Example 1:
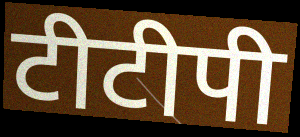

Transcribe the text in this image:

टीटीपी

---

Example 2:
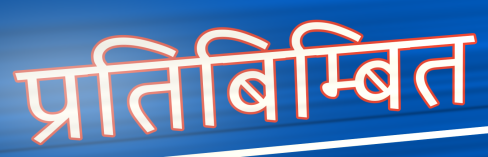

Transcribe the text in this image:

प्रतिबिम्बित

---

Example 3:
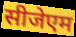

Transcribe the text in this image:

सीजेएम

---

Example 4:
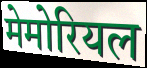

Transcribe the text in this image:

मेमोरियल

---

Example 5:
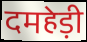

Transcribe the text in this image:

दमहेड़ी